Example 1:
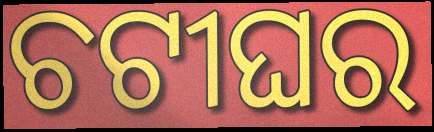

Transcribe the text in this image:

ଚଟୀଘର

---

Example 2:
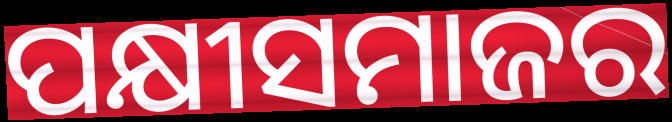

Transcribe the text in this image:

ପକ୍ଷୀସମାଜର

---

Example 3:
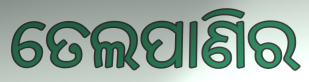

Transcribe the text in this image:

ତେଲପାଣିର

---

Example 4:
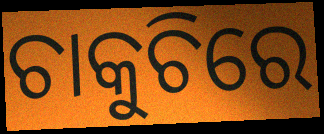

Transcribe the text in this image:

ଚାକୁଚିରେ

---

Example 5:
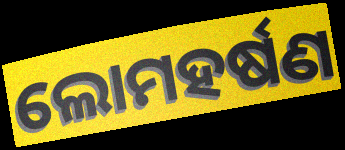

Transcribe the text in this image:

ଲୋମହର୍ଷଣ